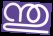
ന്തു